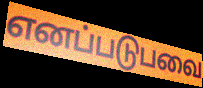
எனப்படுபவை